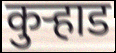
कुर्‍हाड